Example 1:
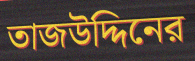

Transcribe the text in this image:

তাজউদ্দিনের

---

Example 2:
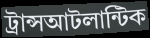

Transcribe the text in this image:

ট্রান্সআটলান্টিক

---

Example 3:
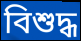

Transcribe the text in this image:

বিশুদ্ধ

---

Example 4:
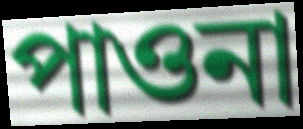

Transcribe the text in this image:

পাওনা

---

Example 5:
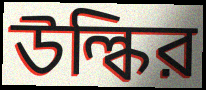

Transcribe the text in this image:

উল্কির